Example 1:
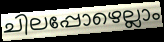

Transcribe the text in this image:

ചിലപ്പോഴെല്ലാം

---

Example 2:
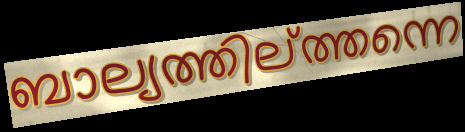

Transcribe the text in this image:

ബാല്യത്തില്ത്തന്നെ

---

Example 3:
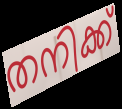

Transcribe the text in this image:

തനിക്ക്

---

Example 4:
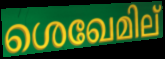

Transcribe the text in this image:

ശെഖേമില്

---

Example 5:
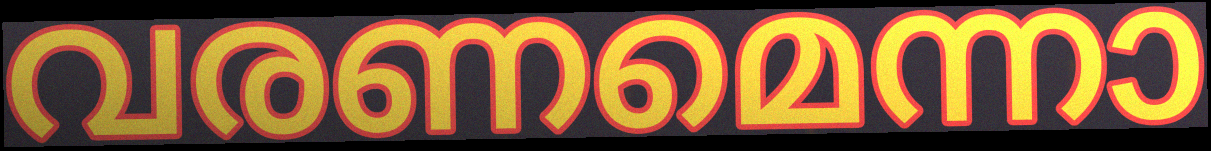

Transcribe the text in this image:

വരണമെന്നാ